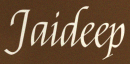
Jaideep